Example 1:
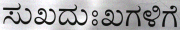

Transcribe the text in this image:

ಸುಖದುಃಖಗಳಿಗೆ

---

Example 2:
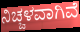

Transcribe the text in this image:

ನಿಚ್ಚಳವಾಗಿವೆ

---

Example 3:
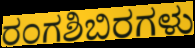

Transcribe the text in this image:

ರಂಗಶಿಬಿರಗಳು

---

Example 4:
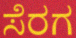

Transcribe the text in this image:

ಸೆರಗ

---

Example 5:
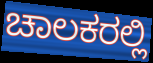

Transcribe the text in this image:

ಚಾಲಕರಲ್ಲಿ